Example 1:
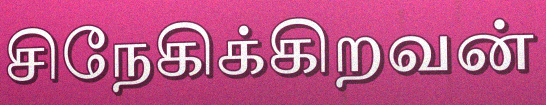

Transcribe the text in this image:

சிநேகிக்கிறவன்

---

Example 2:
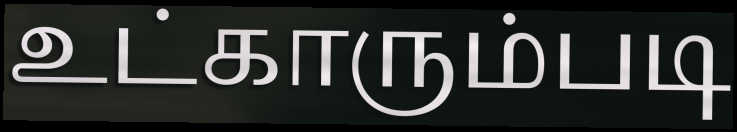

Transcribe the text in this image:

உட்காரும்படி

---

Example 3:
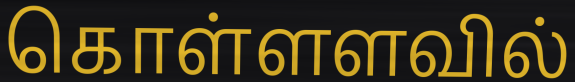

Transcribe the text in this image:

கொள்ளளவில்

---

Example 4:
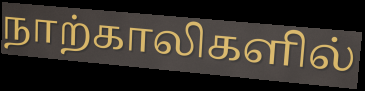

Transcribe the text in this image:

நாற்காலிகளில்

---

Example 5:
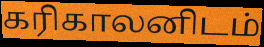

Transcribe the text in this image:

கரிகாலனிடம்